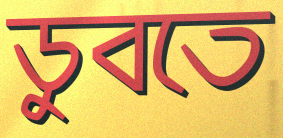
ডুবতে